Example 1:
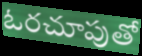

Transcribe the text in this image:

ఓరచూపుతో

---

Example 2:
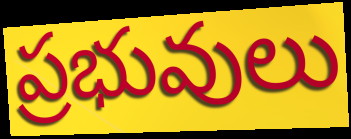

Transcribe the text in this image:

ప్రభువులు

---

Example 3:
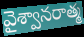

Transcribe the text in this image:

వైశ్వానరాత్మ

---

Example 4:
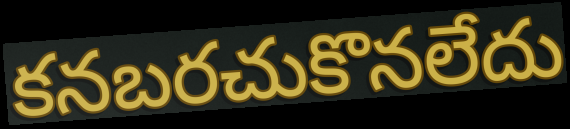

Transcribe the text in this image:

కనబరచుకొనలేదు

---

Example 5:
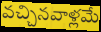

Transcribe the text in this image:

వచ్చినవాళ్లమే